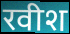
रवीश